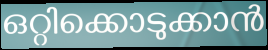
ഒറ്റിക്കൊടുക്കാൻ